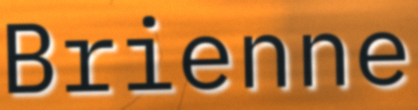
Brienne